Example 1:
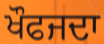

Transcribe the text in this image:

ਖੌਫਜਦਾ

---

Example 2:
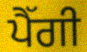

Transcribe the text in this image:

ਪੈੱਗੀ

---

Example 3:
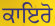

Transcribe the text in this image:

ਕਾਇਰੋ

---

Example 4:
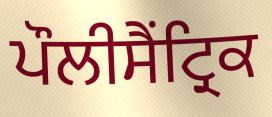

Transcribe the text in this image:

ਪੌਲੀਸੈਂਟ੍ਰਿਕ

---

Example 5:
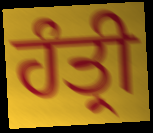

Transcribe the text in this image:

ਹੰਤ੍ਰੀ